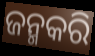
ଜନ୍ମକରି